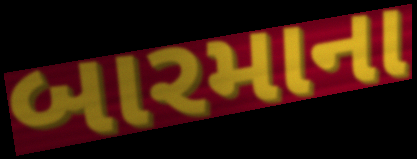
બારમાના